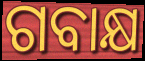
ଗବାକ୍ଷ